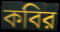
কবির